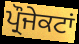
ਪ੍ਰੌਜੇਕਟਾਂ